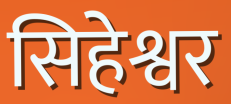
सिहेश्वर